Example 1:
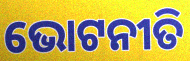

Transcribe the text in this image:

ଭୋଟନୀତି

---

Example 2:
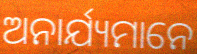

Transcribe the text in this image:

ଅନାର୍ଯ୍ୟମାନେ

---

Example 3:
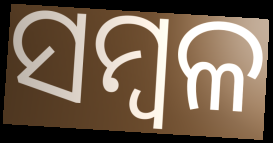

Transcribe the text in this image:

ସମ୍ବଳ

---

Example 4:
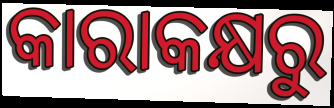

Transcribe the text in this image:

କାରାକକ୍ଷରୁ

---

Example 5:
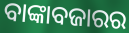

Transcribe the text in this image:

ବାଙ୍କାବଜାରର